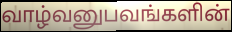
வாழ்வனுபவங்களின்